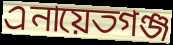
এনায়েতগঞ্জ